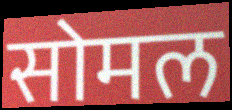
सोमल